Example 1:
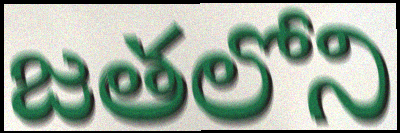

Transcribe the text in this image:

జతలోని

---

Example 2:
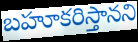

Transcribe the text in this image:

బహూకరిస్తానని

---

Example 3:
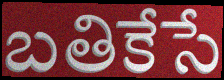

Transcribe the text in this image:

బతికేసే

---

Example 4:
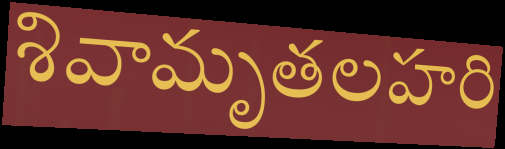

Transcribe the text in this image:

శివామృతలహరి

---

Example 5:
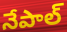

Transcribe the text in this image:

నేపాల్